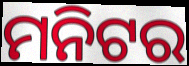
ମନିଟର